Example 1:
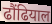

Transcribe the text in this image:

ढौंढियाल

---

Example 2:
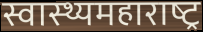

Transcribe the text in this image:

स्वास्थ्यमहाराष्ट्र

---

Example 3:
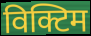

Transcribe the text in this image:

विक्टिम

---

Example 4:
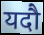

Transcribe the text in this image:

यदौ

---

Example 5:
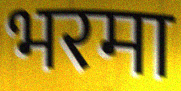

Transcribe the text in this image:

भरमा